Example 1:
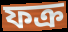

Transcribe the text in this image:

ফক্র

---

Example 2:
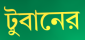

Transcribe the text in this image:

টুবানের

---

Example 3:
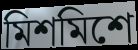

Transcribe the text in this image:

মিশমিশে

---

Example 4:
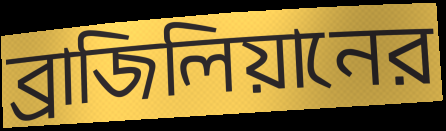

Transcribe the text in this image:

ব্রাজিলিয়ানের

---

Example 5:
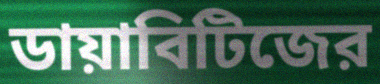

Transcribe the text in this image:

ডায়াবিটিজের